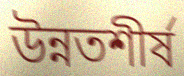
উন্নতশীর্ষ